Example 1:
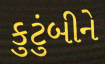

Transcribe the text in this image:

કુટુંબીને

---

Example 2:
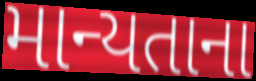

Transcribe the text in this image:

માન્યતાના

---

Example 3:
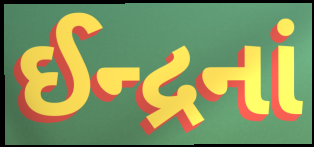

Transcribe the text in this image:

ઈન્દ્રનાં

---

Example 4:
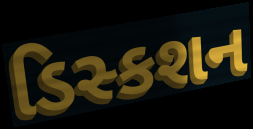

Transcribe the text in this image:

ડિસ્કશન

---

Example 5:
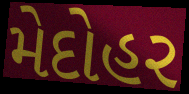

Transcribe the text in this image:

મેદોહર